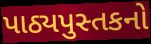
પાઠ્યપુસ્તકનો